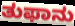
ತುಫಾನು